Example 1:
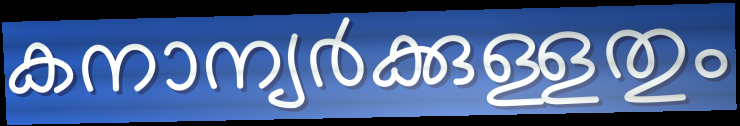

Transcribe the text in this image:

കനാന്യർക്കുള്ളതും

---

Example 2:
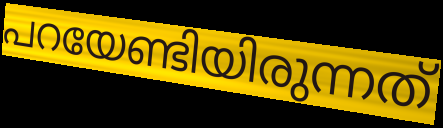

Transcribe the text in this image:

പറയേണ്ടിയിരുന്നത്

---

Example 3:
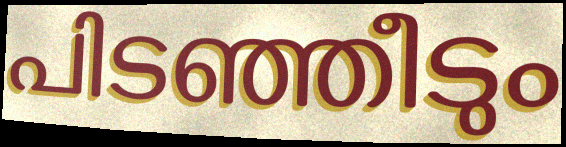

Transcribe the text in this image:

പിടഞ്ഞീടും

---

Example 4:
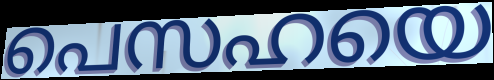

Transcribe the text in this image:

പെസഹയെ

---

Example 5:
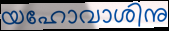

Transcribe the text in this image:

യഹോവാശിനു